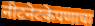
नीटनेटकेपणाचा